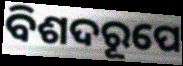
ବିଶଦରୂପେ